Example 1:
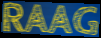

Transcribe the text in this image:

RAAG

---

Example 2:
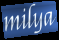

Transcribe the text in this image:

milya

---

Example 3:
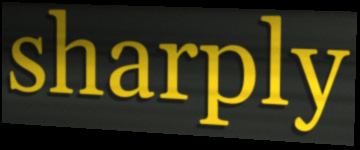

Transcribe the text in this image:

sharply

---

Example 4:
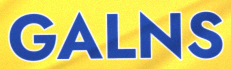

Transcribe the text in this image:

GALNS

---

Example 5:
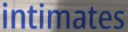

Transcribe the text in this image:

intimates